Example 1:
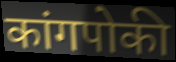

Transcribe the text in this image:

कांगपोकी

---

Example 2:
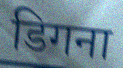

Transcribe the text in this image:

डिगना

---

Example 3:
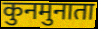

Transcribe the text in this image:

कुनमुनाता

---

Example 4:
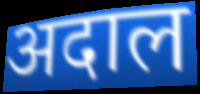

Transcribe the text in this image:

अदाल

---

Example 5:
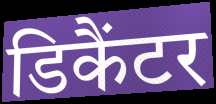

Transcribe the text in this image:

डिकैंटर